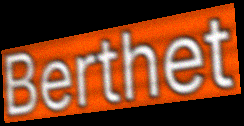
Berthet